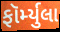
ફૉર્મ્યુલા